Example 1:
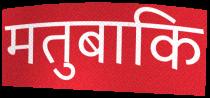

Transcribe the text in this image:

मतुबाकि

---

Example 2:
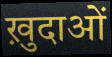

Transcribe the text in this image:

ख़ुदाओं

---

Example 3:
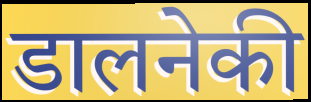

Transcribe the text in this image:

डालनेकी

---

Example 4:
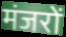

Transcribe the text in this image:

मंजरों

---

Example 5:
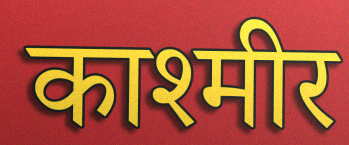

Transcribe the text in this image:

काश्मीर